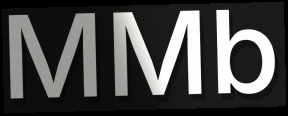
MMb